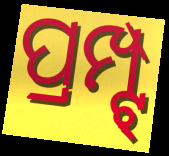
ପ୍ରମ୍ପ୍ଟ୍